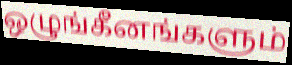
ஒழுங்கீனங்களும்